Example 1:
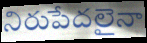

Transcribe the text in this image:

నిరుపేదలైనా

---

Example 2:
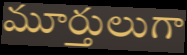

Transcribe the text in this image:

మూర్తులుగా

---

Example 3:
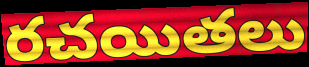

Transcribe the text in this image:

రచయితలు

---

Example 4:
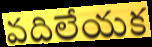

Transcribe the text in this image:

వదిలేయక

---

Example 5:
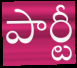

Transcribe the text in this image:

పార్టీ